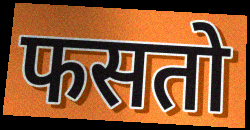
फसतो